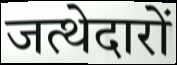
जत्थेदारों